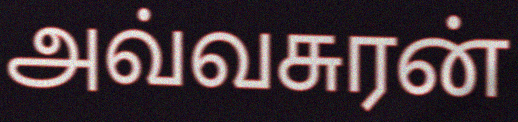
அவ்வசுரன்